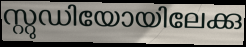
സ്റ്റുഡിയോയിലേക്കു